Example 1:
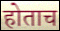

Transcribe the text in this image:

होताच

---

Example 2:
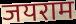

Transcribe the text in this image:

जयराम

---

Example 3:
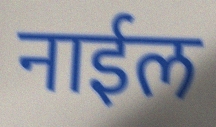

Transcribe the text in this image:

नाईल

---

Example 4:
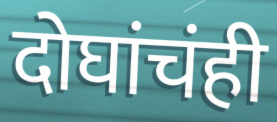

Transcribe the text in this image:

दोघांचंही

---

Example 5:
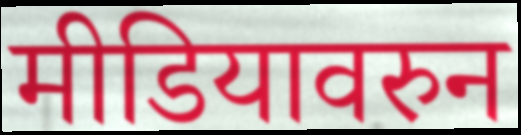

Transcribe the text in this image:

मीडियावरुन